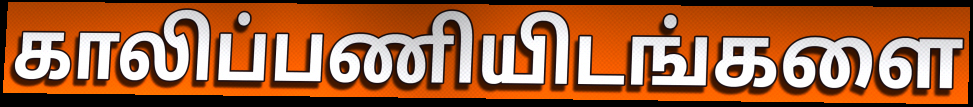
காலிப்பணியிடங்களை